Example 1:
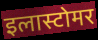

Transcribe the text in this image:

इलास्टोमर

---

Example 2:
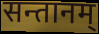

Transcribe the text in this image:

सन्तानम्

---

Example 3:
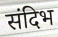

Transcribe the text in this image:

संदिभ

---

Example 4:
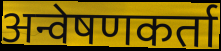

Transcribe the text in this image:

अन्वेषणकर्ता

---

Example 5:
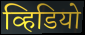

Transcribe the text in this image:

व्हिडियो